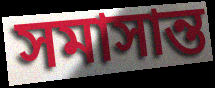
সমাসান্ত